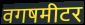
वगषमीटर